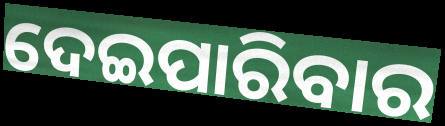
ଦେଇପାରିବାର